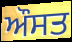
ਔਸਤ